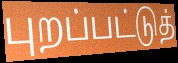
புறப்பட்டுத்